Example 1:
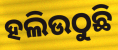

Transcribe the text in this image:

ହଲିଉଠୁଛି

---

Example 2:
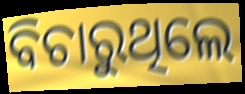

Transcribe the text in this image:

ବିଚାରୁଥିଲେ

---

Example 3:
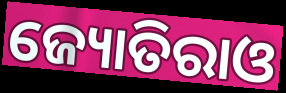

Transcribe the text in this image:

ଜ୍ୟୋତିରାଓ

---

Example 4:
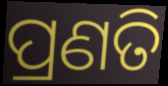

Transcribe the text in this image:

ପ୍ରଣତି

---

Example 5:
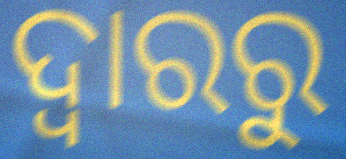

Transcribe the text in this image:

ଦ୍ଵାରରୁ